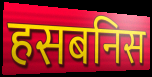
हसबनिस